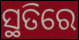
ସ୍ଥତିରେ